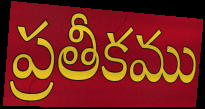
ప్రతీకము